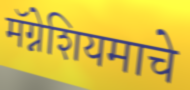
मॅग्नेशियमाचे